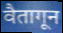
वैतागून